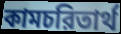
কামচরিতার্থ